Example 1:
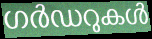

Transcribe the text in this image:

ഗർഡറുകൾ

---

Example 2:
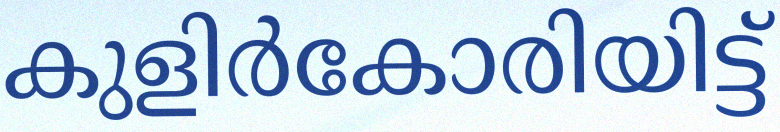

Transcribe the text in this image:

കുളിർകോരിയിട്ട്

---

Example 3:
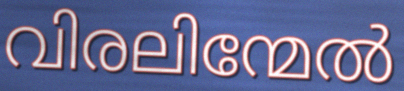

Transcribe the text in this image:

വിരലിന്മേൽ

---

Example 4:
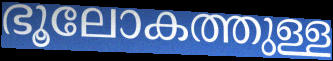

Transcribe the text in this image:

ഭൂലോകത്തുള്ള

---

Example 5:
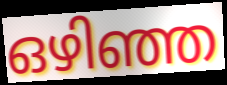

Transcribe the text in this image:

ഒഴിഞ്ഞ